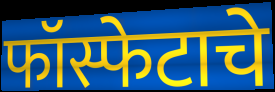
फॉस्फेटाचे